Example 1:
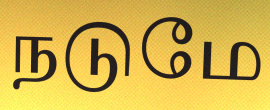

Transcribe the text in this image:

நடுமே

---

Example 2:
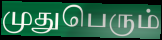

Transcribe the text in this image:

முதுபெரும்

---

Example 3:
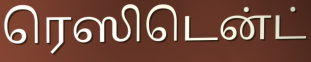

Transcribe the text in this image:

ரெஸிடென்ட்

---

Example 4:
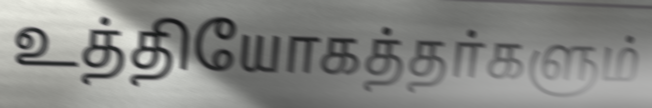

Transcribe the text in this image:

உத்தியோகத்தர்களும்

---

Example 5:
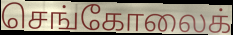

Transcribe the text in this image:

செங்கோலைக்